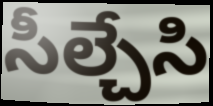
సీల్చేసి